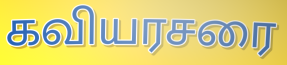
கவியரசரை